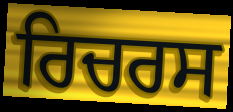
ਰਿਚਰਸ